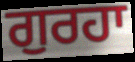
ਗੁਰਹਾ